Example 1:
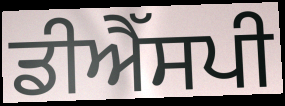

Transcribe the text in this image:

ਡੀਐੱਸਪੀ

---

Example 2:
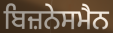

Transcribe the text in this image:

ਬਿਜ਼ਨੇਸਮੈਨ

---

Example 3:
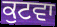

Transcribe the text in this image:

ਕੁਟਵਾ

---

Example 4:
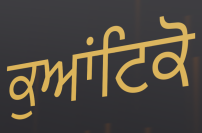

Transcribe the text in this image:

ਕੁਆਂਟਿਕੋ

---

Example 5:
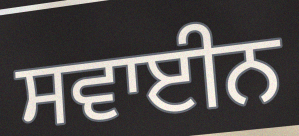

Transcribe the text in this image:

ਸਵਾਈਨ